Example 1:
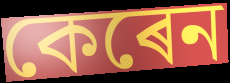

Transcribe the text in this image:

কেৰেন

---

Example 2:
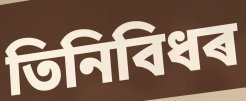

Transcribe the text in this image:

তিনিবিধৰ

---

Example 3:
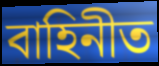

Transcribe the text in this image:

বাহিনীত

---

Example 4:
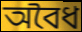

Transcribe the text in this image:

অবৈধ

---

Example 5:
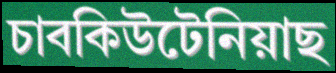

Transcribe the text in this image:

চাবকিউটেনিয়াছ